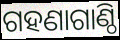
ଗହଣାଗାଣ୍ଠି